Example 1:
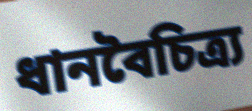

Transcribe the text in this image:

ধানবৈচিত্র্য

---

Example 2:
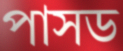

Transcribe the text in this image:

পাসড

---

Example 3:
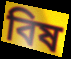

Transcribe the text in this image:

বিষ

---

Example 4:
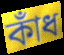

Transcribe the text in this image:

কাঁধ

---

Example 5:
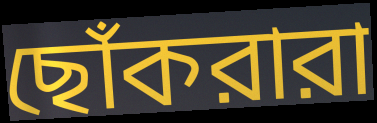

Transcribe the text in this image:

ছোঁকরারা